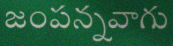
జంపన్నవాగు